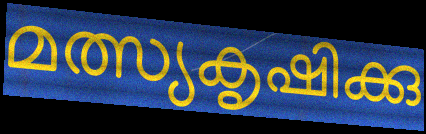
മത്സ്യകൃഷിക്കു